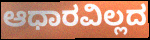
ಆಧಾರವಿಲ್ಲದ